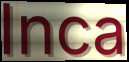
Inca